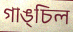
গাঙ্‌চিল